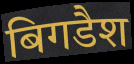
बिगडैश